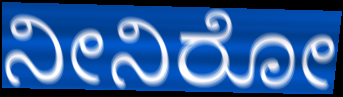
ನೀನಿರೋ